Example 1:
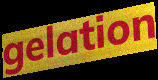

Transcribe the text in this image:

gelation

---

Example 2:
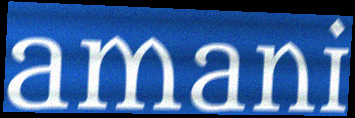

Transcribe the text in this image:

amani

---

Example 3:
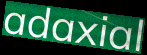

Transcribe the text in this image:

adaxial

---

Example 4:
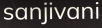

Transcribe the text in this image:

sanjivani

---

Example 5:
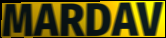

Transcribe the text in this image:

MARDAV